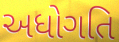
અધોગતિ